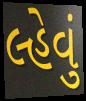
લ્હેવું